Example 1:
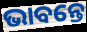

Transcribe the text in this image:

ଭାବନ୍ତେ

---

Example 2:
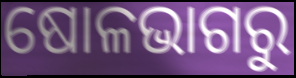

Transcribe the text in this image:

ଷୋଳଭାଗରୁ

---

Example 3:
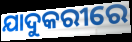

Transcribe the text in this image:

ଯାଦୁକରୀରେ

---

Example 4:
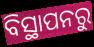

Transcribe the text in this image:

ବିସ୍ଥାପନରୁ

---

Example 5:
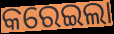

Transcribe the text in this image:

କରେଇଲା